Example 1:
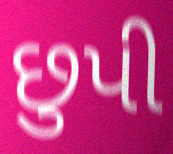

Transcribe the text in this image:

છુપી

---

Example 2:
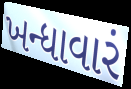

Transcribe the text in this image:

ખન્ધાવારં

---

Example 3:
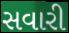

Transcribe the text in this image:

સવારી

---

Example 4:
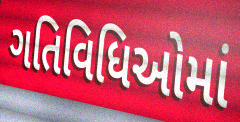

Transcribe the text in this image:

ગતિવિધિઓમાં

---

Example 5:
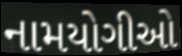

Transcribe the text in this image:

નામયોગીઓ